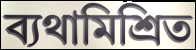
ব্যথামিশ্রিত